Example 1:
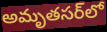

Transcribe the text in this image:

అమృతసర్‌లో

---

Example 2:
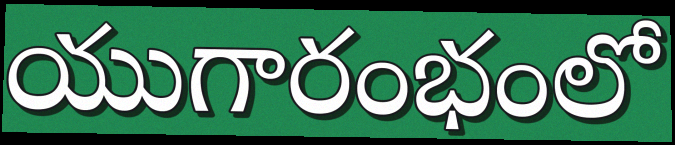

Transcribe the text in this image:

యుగారంభంలో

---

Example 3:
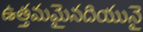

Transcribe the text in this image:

ఉత్తమమైనదియునై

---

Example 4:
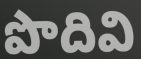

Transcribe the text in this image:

పొదివి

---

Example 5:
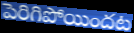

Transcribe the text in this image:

పెరిగిపోయిందట